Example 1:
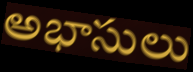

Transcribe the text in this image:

అభాసులు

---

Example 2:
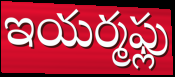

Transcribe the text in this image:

ఇయర్మఫ్లు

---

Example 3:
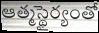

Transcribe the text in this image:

ఆత్మస్థైర్యంతో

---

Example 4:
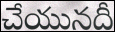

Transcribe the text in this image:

చేయునదీ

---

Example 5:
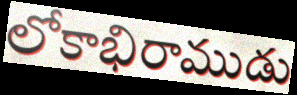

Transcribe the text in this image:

లోకాభిరాముడు